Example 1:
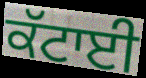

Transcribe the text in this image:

ਕੱਟਾਈ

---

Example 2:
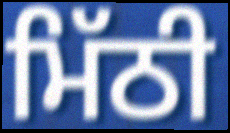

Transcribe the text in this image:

ਮਿੱਠੀ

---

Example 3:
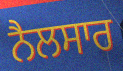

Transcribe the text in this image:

ਨੈਲਸਾਰ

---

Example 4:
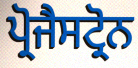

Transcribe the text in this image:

ਪ੍ਰੋਜੈਸਟ੍ਰੋਨ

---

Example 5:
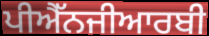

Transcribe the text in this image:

ਪੀਐੱਨਜੀਆਰਬੀ